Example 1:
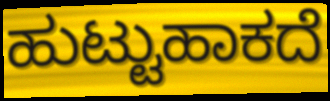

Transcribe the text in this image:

ಹುಟ್ಟುಹಾಕದೆ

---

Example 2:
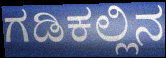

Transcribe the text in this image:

ಗಡಿಕಲ್ಲಿನ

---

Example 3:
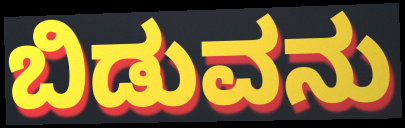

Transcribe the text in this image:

ಬಿಡುವನು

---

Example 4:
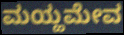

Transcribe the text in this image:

ಮಯ್ಹಮೇವ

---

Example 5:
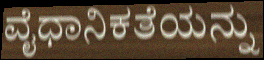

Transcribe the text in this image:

ವೈಧಾನಿಕತೆಯನ್ನು